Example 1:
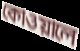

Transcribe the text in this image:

কোওয়ালে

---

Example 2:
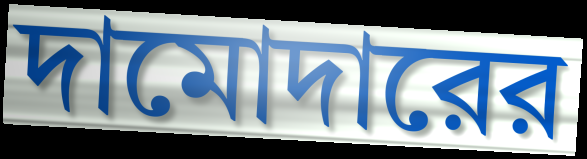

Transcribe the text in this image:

দামোদারের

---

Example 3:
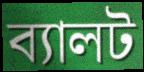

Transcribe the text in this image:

ব্যালট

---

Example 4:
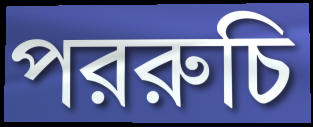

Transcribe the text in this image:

পররুচি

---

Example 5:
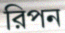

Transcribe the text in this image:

রিপন